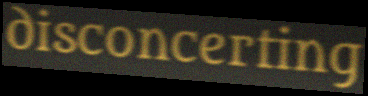
disconcerting